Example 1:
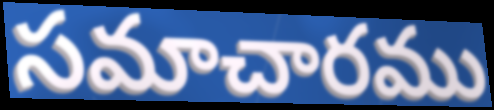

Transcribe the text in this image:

సమాచారము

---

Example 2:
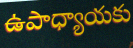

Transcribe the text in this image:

ఉపాధ్యాయకు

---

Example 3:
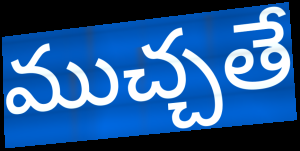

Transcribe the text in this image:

ముచ్చతే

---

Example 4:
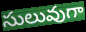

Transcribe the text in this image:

సులువుగా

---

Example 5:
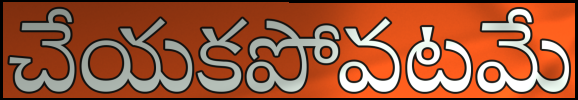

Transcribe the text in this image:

చేయకపోవటమే